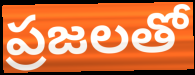
ప్రజలతో